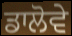
ਡਾਲੋਵੇ